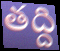
తద్ది